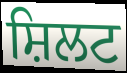
ਸ਼ਿਲਟ